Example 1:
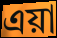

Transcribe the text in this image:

এয়া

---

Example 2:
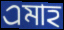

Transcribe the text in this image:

এমাহ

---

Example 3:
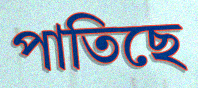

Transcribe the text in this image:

পাতিছে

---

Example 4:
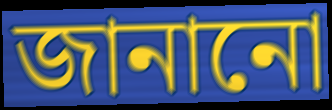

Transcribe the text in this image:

জানানো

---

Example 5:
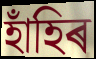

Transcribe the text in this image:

হাঁহিৰ